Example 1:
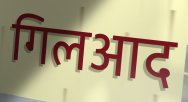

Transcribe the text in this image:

गिलआद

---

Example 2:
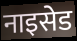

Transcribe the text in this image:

नाइसेड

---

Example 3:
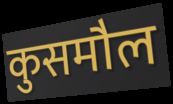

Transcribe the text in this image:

कुसमौल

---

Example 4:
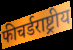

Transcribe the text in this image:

फीचर्डराष्ट्रीय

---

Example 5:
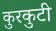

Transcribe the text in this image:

कुरकुटी